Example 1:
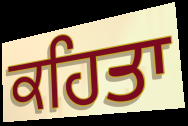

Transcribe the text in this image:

ਕਹਿਤਾ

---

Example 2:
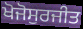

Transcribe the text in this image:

ਖੋਜੋਸੁਰਜੀਤ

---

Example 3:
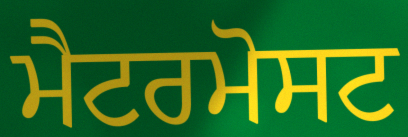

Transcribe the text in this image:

ਮੈਟਰਮੋਸਟ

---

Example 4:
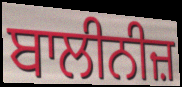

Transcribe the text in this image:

ਬਾਲੀਨੀਜ਼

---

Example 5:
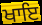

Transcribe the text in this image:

ਖਾਇ